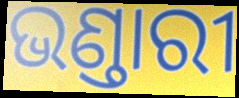
ଭଣ୍ଡାରୀ